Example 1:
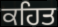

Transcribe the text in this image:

ਕਹਿਤ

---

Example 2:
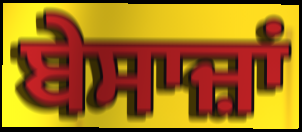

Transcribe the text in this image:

ਬੇਸਾਜ਼ਾਂ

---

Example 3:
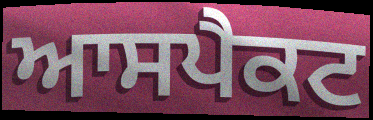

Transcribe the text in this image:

ਆਸਪੈਕਟ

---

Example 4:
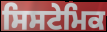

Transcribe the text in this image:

ਸਿਸਟੇਮਿਕ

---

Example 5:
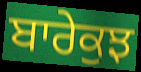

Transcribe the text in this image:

ਬਾਰੇਕੁਝ